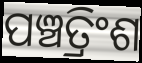
ପଞ୍ଚତ୍ରିଂଶ